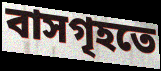
বাসগৃহতে